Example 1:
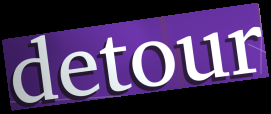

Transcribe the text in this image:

detour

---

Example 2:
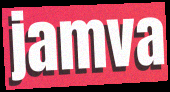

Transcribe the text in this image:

jamva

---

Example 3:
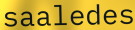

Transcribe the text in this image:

saaledes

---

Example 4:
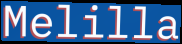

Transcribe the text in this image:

Melilla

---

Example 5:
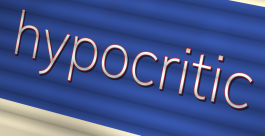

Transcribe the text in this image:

hypocritic